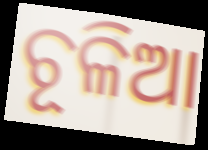
ଚୂଳିଆ